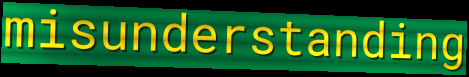
misunderstanding